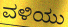
ವಳಿಯು